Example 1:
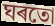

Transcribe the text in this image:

ঘৰতো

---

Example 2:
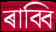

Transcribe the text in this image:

ৰাব্বি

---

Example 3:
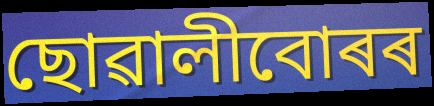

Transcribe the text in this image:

ছোৱালীবোৰৰ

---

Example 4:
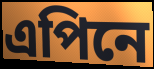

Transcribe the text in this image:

এপিনে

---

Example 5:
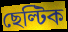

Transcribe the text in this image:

ছেল্টিক